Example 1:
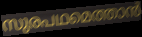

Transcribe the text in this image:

സുരപഥമെത്താൻ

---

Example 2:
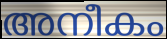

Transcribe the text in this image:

അനീകം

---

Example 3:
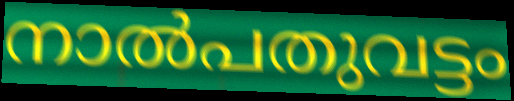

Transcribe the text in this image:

നാൽപതുവട്ടം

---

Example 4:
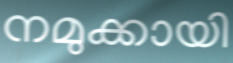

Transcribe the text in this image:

നമുക്കായി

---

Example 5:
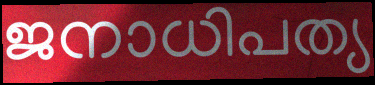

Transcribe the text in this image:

ജനാധിപത്യ